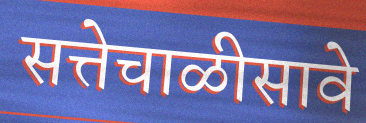
सत्तेचाळीसावे